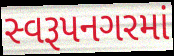
સ્વરૂપનગરમાં